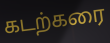
கடற்கரை